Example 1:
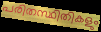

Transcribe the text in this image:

പരിതസ്ഥിതികളും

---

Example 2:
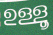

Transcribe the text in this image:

ഉള്ളൂ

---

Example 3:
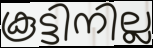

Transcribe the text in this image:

കൂട്ടിനില്ല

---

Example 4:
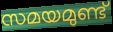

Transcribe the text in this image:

സമയമുണ്ട്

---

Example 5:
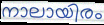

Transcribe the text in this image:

നാലായിരം